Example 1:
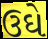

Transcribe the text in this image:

ઉઘે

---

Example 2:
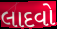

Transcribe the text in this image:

લાદવો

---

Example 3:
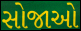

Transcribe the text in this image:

સોજાઓ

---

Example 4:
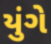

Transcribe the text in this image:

યુંગે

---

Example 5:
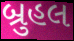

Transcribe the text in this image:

બ્રુહલ